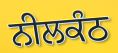
ਨੀਲਕੰਠ